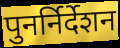
पुनर्निर्देशन